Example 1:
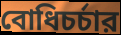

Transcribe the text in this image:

বোধিচর্চার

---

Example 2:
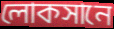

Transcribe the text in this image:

লোকসানে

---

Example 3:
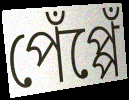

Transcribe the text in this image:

পেঁপ্পেঁ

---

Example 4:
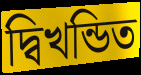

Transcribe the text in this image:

দ্বিখন্ডিত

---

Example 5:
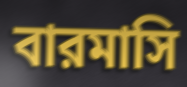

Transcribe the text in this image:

বারমাসি